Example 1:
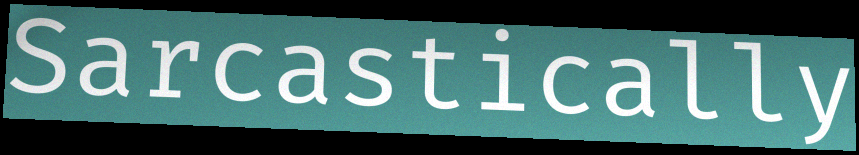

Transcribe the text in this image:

Sarcastically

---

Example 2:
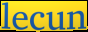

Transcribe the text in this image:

lecun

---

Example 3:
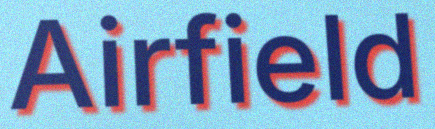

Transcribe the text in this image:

Airfield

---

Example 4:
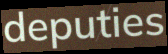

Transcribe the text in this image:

deputies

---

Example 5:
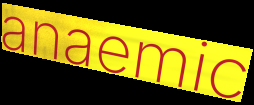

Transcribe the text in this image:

anaemic